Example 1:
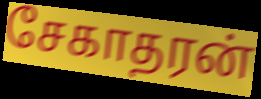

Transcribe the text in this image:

சேகாதரன்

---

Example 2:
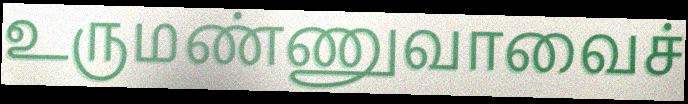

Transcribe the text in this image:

உருமண்ணுவாவைச்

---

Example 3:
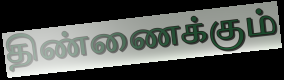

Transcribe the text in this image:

திண்ணைக்கும்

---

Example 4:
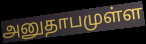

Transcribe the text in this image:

அனுதாபமுள்ள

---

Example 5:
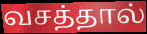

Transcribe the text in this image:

வசத்தால்